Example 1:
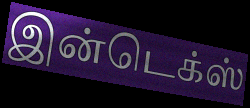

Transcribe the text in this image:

இன்டெக்ஸ்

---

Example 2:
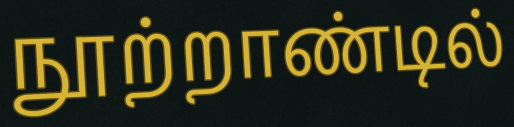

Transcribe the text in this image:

நூற்றாண்டில்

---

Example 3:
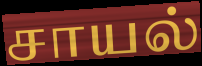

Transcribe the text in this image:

சாயல்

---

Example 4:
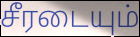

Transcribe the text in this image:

சீரடையும்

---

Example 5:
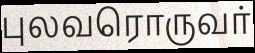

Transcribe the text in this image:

புலவரொருவர்